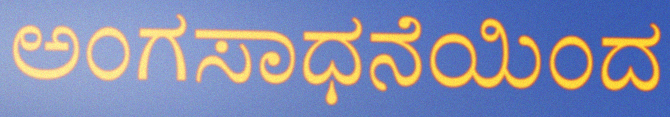
ಅಂಗಸಾಧನೆಯಿಂದ